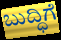
ಬುದ್ಧಿಗೆ